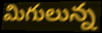
మిగులున్న